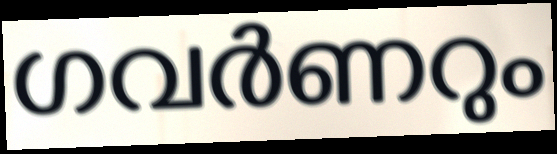
ഗവർണറും